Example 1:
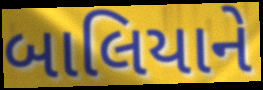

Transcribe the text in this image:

બાલિયાને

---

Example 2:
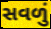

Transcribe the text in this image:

સવળું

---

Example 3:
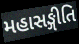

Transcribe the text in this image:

મહાસઙ્ગીતિ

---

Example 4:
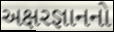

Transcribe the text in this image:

અક્ષરજ્ઞાનનો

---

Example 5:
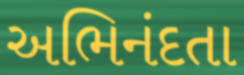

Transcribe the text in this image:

અભિનંદતા